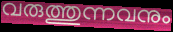
വരുത്തുന്നവനും